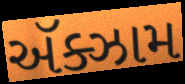
ઍક્ઝામ